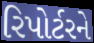
રિપોર્ટરને